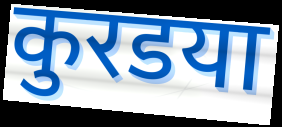
कुरडया